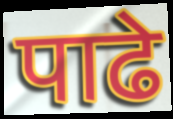
पाढे